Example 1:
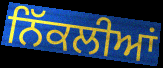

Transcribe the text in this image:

ਨਿੱਕਲੀਆਂ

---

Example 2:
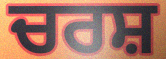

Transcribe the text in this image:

ਚਰਸ਼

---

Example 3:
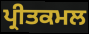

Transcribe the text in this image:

ਪ੍ਰੀਤਕਮਲ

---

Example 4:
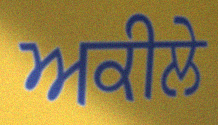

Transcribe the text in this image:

ਅਕੀਲੇ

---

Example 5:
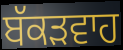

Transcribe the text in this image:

ਬੱਕੜਵਾਹ